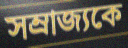
সম্রাজ্যকে